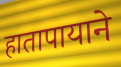
हातापायाने